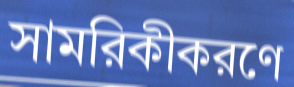
সামরিকীকরণে